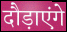
दौड़ाएंगे